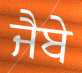
ਜੈਬੇ